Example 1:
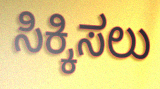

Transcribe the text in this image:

ಸಿಕ್ಕಿಸಲು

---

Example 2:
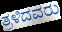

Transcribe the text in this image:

ತ್ರಳಿದವರು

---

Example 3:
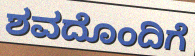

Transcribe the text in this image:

ಶವದೊಂದಿಗೆ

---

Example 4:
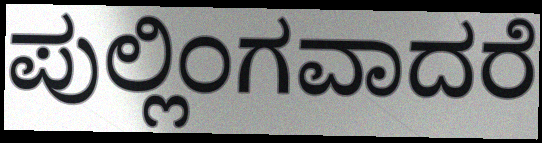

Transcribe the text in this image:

ಪುಲ್ಲಿಂಗವಾದರೆ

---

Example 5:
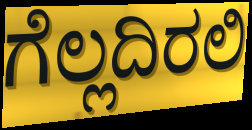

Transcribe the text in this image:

ಗೆಲ್ಲದಿರಲಿ